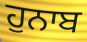
ਹੁਨਾਬ